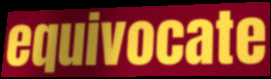
equivocate